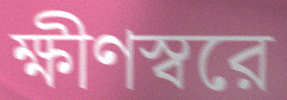
ক্ষীণস্বরে